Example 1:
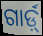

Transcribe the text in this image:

ଗାର୍ଡ଼୍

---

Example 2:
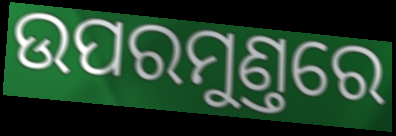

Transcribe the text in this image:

ଉପରମୁଣ୍ତରେ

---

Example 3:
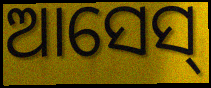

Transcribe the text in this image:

ଆସେସ୍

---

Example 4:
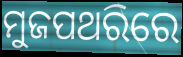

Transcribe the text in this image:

ମୁଜପଥରିରେ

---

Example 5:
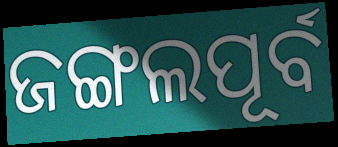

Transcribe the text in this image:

ଜଙ୍ଗଲପୂର୍ବ